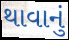
થાવાનું